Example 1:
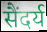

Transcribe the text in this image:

सैंदर्य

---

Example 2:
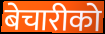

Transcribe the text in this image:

बेचारीको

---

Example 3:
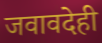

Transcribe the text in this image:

जवावदेही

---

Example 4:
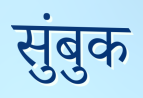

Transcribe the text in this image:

सुंबुक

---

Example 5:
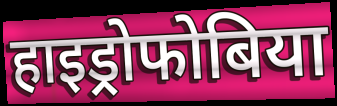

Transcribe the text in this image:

हाइड्रोफोबिया